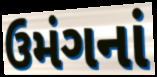
ઉમંગનાં